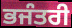
ਭਜੰਤਰੀ